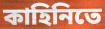
কাহিনিতে